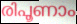
രിപൂണാം